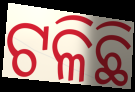
ଟଳିଛି